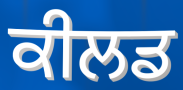
ਕੀਲਡ